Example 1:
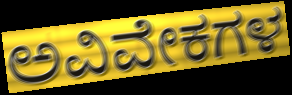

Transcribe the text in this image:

ಅವಿವೇಕಗಳ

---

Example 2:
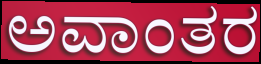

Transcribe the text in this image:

ಅವಾಂತರ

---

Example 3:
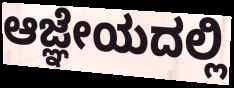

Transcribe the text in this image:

ಆಜ್ಞೇಯದಲ್ಲಿ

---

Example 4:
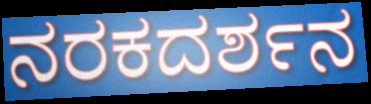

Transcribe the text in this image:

ನರಕದರ್ಶನ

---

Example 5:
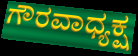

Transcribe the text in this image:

ಗೌರವಾಧ್ಯಕ್ಷ